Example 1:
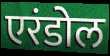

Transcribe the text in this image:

एरंडोल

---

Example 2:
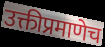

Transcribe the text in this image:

उक्तीप्रमाणेच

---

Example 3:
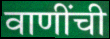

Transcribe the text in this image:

वाणींची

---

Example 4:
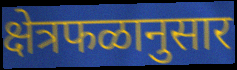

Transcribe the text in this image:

क्षेत्रफळानुसार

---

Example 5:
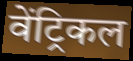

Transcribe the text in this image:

वेंट्रिकल